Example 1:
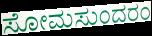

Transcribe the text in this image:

ಸೋಮಸುಂದರಂ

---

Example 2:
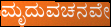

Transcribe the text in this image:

ಮೃದುವಚನವೇ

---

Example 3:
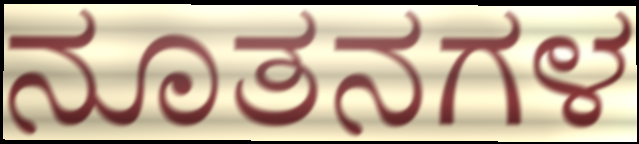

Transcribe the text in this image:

ನೂತನಗಳ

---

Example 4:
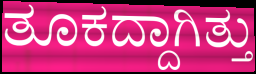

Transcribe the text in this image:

ತೂಕದ್ದಾಗಿತ್ತು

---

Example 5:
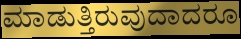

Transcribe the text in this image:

ಮಾಡುತ್ತಿರುವುದಾದರೂ